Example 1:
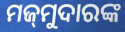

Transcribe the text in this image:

ମଜ୍‍ମୁଦାରଙ୍କ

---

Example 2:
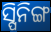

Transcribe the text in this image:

ସ୍ପିନିଙ୍ଗ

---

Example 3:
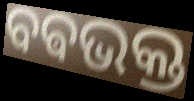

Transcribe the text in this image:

ବଵଭକ୍ତ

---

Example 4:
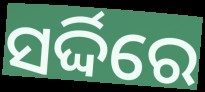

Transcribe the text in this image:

ସର୍ଦ୍ଦିରେ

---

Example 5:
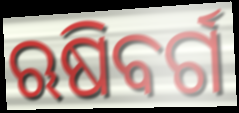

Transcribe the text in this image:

ଋଷିବର୍ଗ